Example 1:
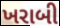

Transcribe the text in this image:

ખરાબી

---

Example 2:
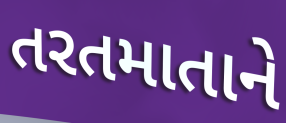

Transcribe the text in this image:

તરતમાતાને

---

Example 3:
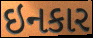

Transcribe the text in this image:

ઇનકાર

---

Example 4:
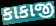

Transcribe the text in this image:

કાકાજી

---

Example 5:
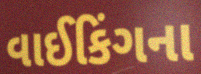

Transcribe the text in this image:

વાઈકિંગના